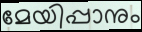
മേയിപ്പാനും